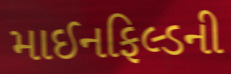
માઈનફિલ્ડની